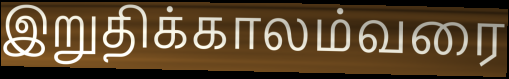
இறுதிக்காலம்வரை